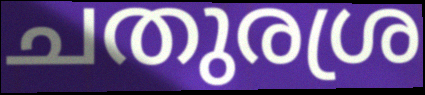
ചതുരശ്ര